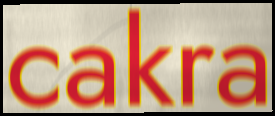
cakra